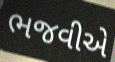
ભજવીએ